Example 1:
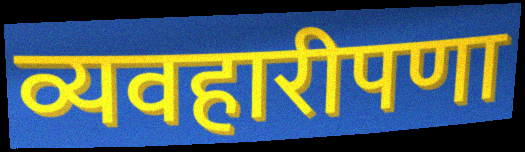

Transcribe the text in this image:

व्यवहारीपणा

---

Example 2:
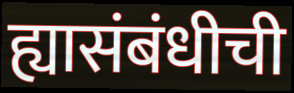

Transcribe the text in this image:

ह्यासंबंधीची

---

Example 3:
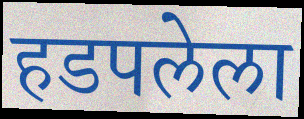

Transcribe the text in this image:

हडपलेला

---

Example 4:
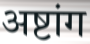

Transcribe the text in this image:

अष्टांग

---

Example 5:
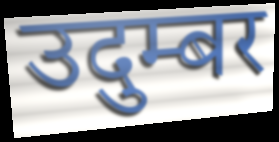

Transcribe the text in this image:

उदुम्बर